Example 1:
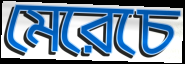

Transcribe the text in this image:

মেরেচে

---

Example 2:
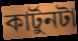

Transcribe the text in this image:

কার্টুনটা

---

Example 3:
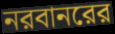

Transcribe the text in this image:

নরবানরের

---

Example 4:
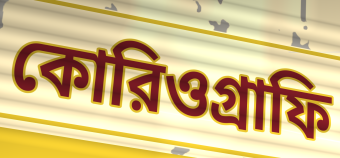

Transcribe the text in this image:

কোরিওগ্রাফি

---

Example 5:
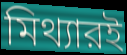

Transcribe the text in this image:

মিথ্যারই